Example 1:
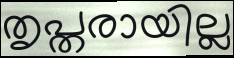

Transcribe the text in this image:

തൃപ്തരായില്ല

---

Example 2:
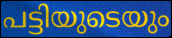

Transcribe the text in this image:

പട്ടിയുടെയും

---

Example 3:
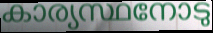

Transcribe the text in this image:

കാര്യസ്ഥനോടു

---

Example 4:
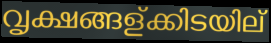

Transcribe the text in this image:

വൃക്ഷങ്ങള്ക്കിടയില്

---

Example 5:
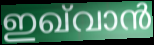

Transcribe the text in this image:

ഇഖ്‌വാൻ